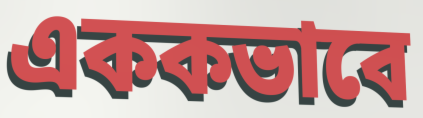
এককভাবে